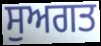
ਸੁਅਗਤ